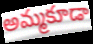
అమ్మకూడా